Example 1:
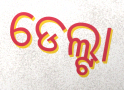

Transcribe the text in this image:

ଡେଲ୍ଟା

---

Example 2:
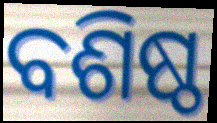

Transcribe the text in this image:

ବଶିଷ୍ଠ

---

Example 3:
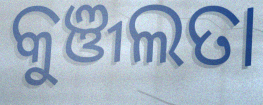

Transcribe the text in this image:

କୁଞ୍ଜଲତା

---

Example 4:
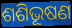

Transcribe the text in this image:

ଶଶିଭୂଷଣ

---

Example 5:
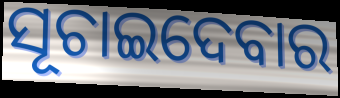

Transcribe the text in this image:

ସୂଚାଇଦେବାର